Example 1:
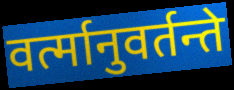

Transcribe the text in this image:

वर्त्मानुवर्तन्ते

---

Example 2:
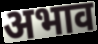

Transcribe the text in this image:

अभाव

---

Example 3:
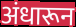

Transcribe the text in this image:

अंधारून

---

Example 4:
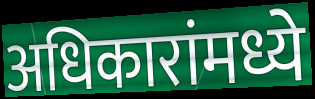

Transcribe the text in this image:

अधिकारांमध्ये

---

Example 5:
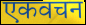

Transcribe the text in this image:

एकवचन